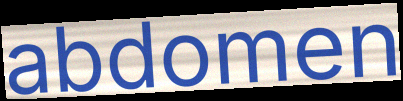
abdomen